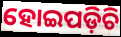
ହୋଇପଡ଼ିଚି